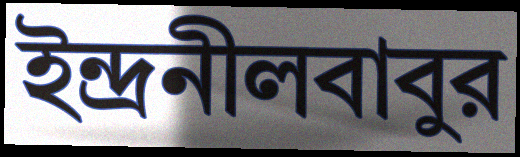
ইন্দ্রনীলবাবুর